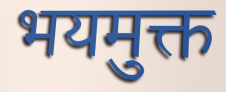
भयमुक्त